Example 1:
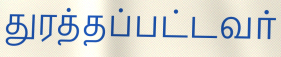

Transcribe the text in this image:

துரத்தப்பட்டவர்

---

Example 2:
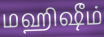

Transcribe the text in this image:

மஹிஷீம்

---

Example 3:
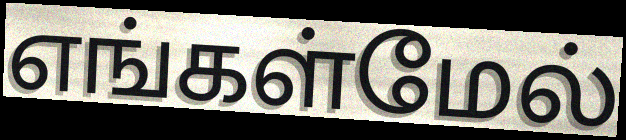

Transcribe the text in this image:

எங்கள்மேல்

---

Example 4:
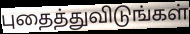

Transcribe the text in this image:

புதைத்துவிடுங்கள்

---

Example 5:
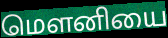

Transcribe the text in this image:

மௌனியை